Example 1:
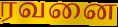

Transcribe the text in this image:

ரவனை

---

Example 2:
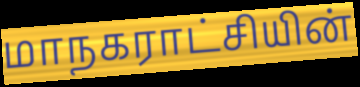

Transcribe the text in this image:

மாநகராட்சியின்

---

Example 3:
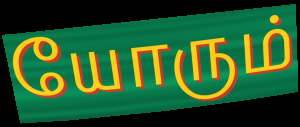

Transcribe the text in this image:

யோரும்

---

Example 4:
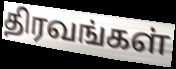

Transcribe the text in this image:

திரவங்கள்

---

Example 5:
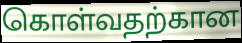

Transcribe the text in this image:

கொள்வதற்கான